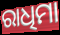
ରାଧିମା